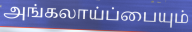
அங்கலாய்ப்பையும்